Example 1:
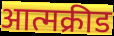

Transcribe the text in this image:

आत्मक्रीड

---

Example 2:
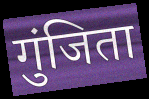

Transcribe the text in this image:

गुंजिता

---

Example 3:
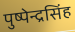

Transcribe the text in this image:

पुष्पेन्द्रसिंह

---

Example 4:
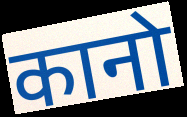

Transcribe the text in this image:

कानो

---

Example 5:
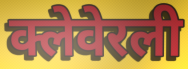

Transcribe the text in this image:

क्लेवेरली